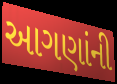
આગણાંની